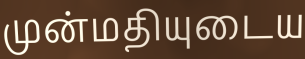
முன்மதியுடைய